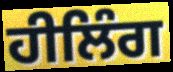
ਹੀਲਿੰਗ